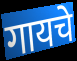
गायचे